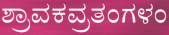
ಶ್ರಾವಕವ್ರತಂಗಳಂ